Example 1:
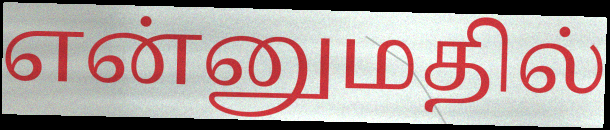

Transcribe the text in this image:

என்னுமதில்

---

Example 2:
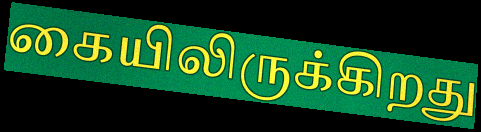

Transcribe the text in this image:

கையிலிருக்கிறது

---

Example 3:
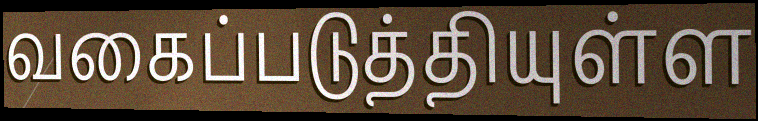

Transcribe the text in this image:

வகைப்படுத்தியுள்ள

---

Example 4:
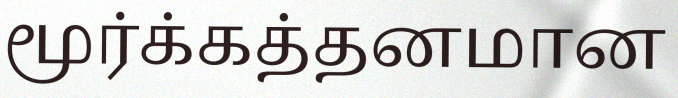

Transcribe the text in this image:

மூர்க்கத்தனமான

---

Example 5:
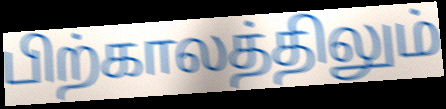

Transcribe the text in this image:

பிற்காலத்திலும்